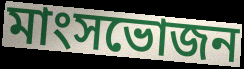
মাংসভোজন